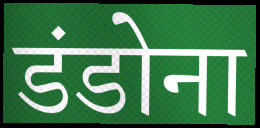
डंडोना